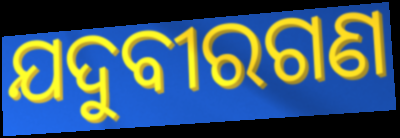
ଯଦୁବୀରଗଣ